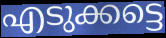
എടുക്കട്ടെ